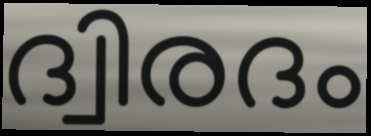
ദ്വിരദം